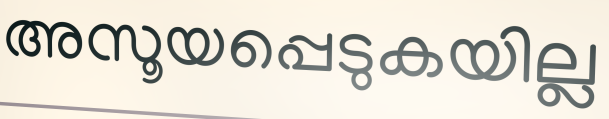
അസൂയപ്പെടുകയില്ല